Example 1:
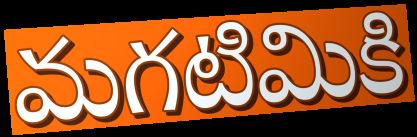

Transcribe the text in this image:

మగటిమికి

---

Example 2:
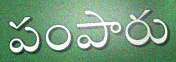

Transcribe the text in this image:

పంపారు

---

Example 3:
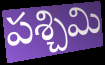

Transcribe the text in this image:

పశ్చిమి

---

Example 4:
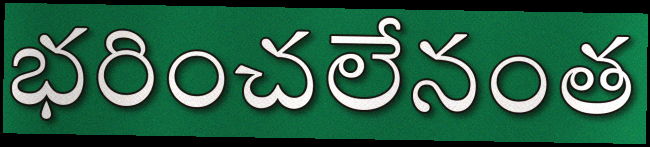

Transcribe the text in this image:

భరించలేనంత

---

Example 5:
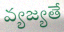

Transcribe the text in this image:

వ్యజ్యతే